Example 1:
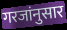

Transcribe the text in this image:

गरजांनुसार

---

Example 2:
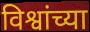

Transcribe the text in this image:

विश्वांच्या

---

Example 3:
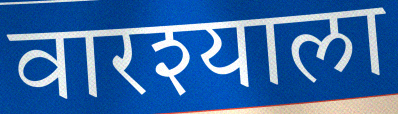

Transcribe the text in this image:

वारश्याला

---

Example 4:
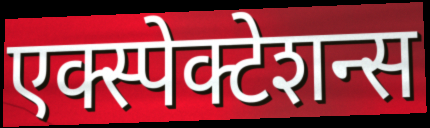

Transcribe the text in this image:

एक्स्पेक्टेशन्स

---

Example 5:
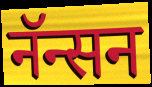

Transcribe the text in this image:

नॅन्सन